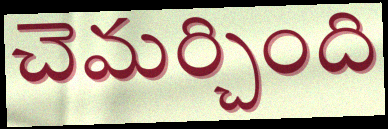
చెమర్చింది